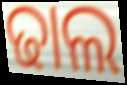
ଢାଲ